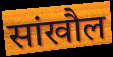
सांखौल